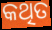
କଥିତ